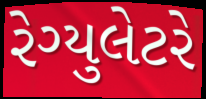
રેગ્યુલેટરે